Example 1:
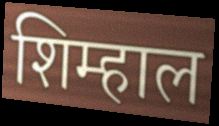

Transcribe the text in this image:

शिम्हाल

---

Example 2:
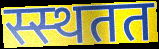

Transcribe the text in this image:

स्स्थतत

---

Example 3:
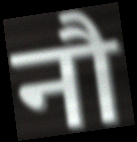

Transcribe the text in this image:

नौ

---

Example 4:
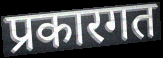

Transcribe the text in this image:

प्रकारगत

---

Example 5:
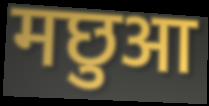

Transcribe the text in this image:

मछुआ